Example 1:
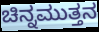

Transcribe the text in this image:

ಚಿನ್ನಮುತ್ತನ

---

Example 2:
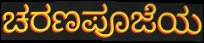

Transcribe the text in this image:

ಚರಣಪೂಜೆಯ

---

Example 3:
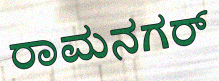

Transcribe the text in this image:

ರಾಮನಗರ್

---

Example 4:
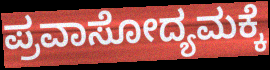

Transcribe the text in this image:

ಪ್ರವಾಸೋದ್ಯಮಕ್ಕೆ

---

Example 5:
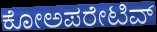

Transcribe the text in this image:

ಕೋಅಪರೇಟಿವ್